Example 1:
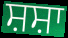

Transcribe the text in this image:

ਸ਼ਸ਼ਾ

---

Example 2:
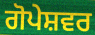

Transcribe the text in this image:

ਗੋਪੇਸ਼ਵਰ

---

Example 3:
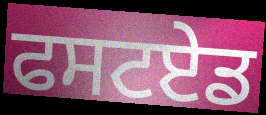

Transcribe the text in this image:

ਫਸਟਏਡ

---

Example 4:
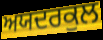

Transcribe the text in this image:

ਅਯਦਰਕੁਲ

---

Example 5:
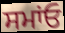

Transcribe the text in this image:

ਸਮਾਂਓ